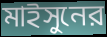
মাইসুনের